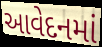
આવેદનમાં